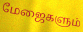
மேஜைகளும்